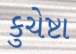
કુચેષ્ટા